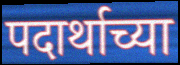
पदार्थाच्या